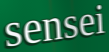
sensei